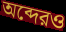
অব্দেরও